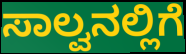
ಸಾಲ್ವನಲ್ಲಿಗೆ